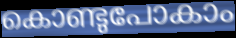
കൊണ്ടുപോകാം